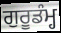
ਗੁਰੂਡੰਮ੍ਹ